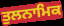
ਤੁਲਨਾਮਿਕ